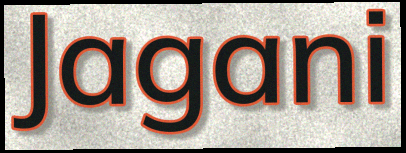
Jagani